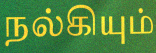
நல்கியும்